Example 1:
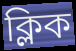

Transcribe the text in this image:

ক্লিক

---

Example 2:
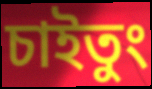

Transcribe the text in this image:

চাইতুং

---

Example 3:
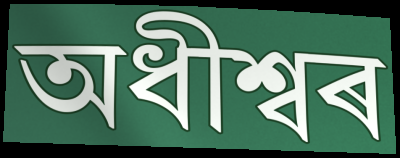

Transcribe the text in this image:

অধীশ্বৰ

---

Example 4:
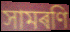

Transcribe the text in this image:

সামৰণি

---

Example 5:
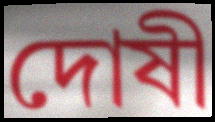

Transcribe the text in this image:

দোষী